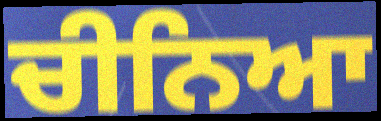
ਚੀਨਿਆ